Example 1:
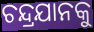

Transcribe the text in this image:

ଚନ୍ଦ୍ରଯାନକୁ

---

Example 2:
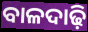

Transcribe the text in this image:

ବାଳଦାଢ଼ି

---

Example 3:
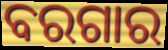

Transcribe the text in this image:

ବରଗାର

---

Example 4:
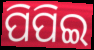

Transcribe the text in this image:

ପିପିଇ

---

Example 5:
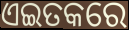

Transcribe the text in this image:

ଏଇତକରେ